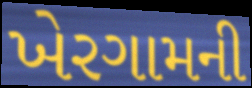
ખેરગામની